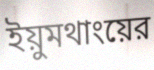
ইয়ুমথাংয়ের